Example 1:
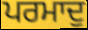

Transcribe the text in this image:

ਪਰਮਾਦੁ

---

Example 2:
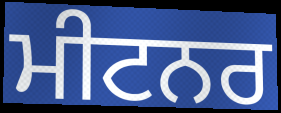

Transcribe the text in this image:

ਮੀਟਨਰ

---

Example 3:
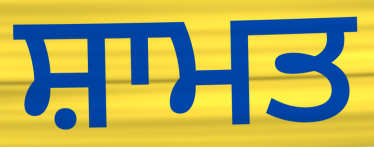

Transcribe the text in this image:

ਸ਼ਾਮਤ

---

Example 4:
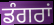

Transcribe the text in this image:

ਡੰਗਰਾਂ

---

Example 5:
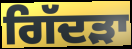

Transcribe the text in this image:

ਗਿੱਦੜਾ